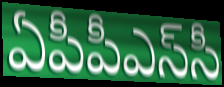
ఏపీపీఎస్‌సీ